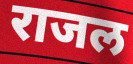
राजल